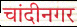
चांदीनगर